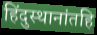
हिंदुस्थानांतहि